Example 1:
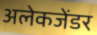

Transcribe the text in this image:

अलेकजेंडर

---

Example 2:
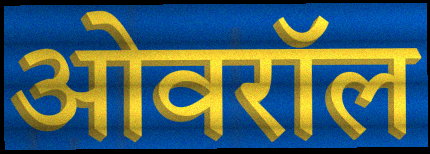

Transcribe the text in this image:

ओवरॉल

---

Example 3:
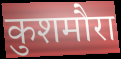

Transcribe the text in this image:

कुशमौरा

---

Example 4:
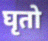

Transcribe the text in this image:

घृतो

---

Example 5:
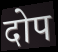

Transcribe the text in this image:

दोप